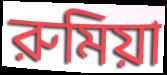
রুমিয়া